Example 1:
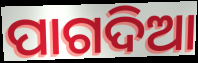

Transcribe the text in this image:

ପାଗଦିଆ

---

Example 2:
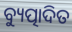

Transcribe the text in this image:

ବ୍ୟୁତ୍ପାଦିତ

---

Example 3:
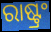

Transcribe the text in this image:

ରାଷ୍ଟ୍ରଂ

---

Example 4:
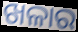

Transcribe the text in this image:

ଖଳାର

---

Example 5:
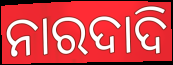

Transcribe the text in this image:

ନାରଦାଦି